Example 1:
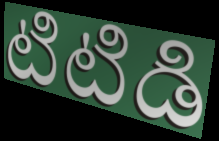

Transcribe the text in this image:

టిటిడి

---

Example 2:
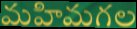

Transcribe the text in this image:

మహిమగల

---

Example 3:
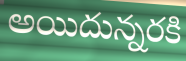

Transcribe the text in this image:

అయిదున్నరకి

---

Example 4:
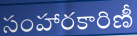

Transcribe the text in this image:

సంహారకారిణీ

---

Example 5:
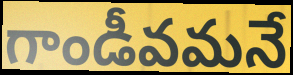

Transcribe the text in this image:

గాండీవమనే